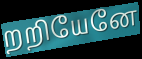
றறியேனே